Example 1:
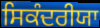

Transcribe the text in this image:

ਸਿਕੰਦਰੀਯਾ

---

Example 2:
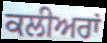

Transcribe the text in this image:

ਕਲੀਅਰਾਂ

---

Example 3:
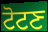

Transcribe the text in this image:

ਟੋਟਣ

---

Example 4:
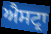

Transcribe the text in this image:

ਐਸਟ੍ਰਾ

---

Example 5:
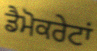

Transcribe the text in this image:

ਡੈਮੋਕਰੇਟਾਂ